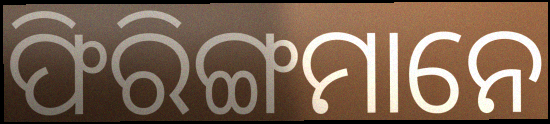
ଫିରିଙ୍ଗମାନେ